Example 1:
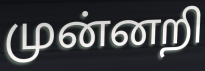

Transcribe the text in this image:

முன்னறி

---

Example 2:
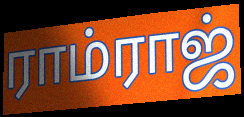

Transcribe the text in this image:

ராம்ராஜ்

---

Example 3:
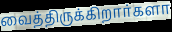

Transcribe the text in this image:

வைத்திருக்கிறார்களா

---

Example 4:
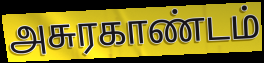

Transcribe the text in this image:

அசுரகாண்டம்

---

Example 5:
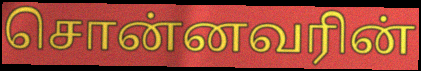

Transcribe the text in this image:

சொன்னவரின்